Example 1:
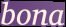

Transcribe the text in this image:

bona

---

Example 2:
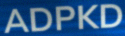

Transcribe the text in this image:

ADPKD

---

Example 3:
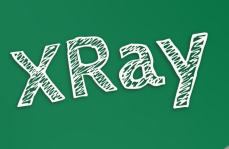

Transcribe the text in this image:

XRay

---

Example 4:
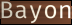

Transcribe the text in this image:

Bayon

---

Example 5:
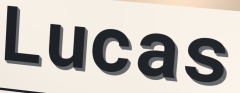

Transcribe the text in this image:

Lucas